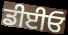
ਡੀਈਓ